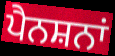
ਪੈਨਸ਼ਨਾਂ